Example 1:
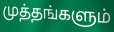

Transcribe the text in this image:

முத்தங்களும்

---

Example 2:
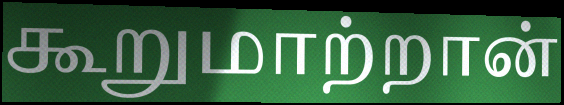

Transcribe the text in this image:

கூறுமாற்றான்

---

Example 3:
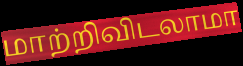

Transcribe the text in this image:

மாற்றிவிடலாமா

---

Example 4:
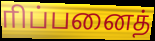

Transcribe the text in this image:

ரிப்பனைத்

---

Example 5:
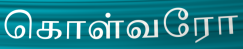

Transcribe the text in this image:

கொள்வரோ